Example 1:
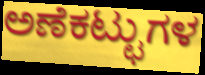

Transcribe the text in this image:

ಅಣೆಕಟ್ಟುಗಳ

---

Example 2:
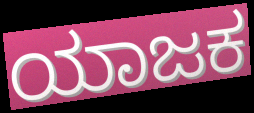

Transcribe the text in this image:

ಯಾಜಕ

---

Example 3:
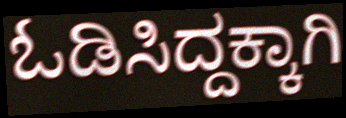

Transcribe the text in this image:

ಓಡಿಸಿದ್ದಕ್ಕಾಗಿ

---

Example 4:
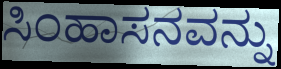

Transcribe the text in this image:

ಸಿಂಹಾಸನವನ್ನು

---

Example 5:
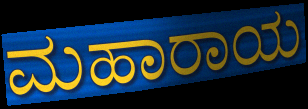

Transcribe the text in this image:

ಮಹಾರಾಯ